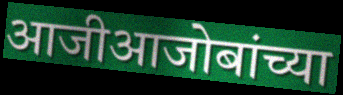
आजीआजोबांच्या